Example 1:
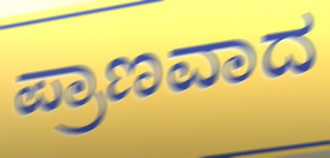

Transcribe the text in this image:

ಪ್ರಾಣವಾದ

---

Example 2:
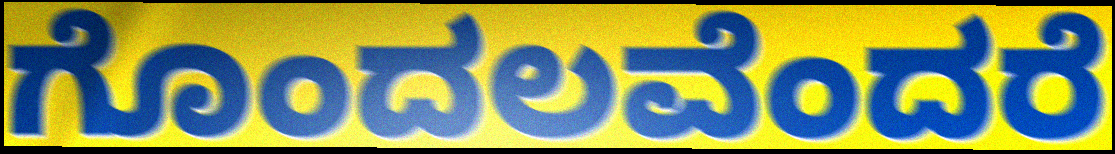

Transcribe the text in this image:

ಗೊಂದಲವೆಂದರೆ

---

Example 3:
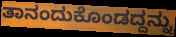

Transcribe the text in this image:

ತಾನಂದುಕೊಂಡದ್ದನ್ನು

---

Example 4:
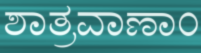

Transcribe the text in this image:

ಶಾತ್ರವಾಣಾಂ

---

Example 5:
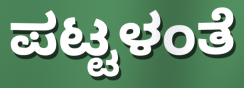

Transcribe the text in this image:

ಪಟ್ಟಳಂತೆ